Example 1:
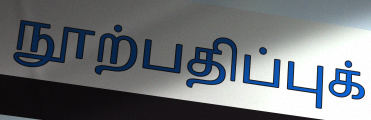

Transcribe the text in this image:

நூற்பதிப்புக்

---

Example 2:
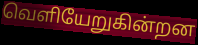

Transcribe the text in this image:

வெளியேறுகின்றன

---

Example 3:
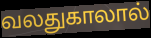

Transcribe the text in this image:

வலதுகாலால்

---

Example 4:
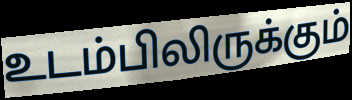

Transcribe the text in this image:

உடம்பிலிருக்கும்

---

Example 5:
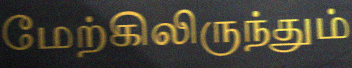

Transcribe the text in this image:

மேற்கிலிருந்தும்